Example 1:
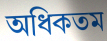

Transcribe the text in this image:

অধিকতম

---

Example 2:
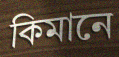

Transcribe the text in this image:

কিমানে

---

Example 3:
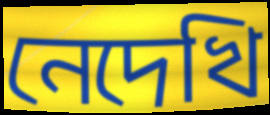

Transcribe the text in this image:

নেদেখি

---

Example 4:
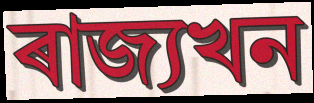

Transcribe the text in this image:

ৰাজ্যখন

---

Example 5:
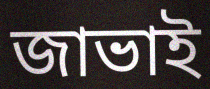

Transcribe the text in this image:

জাভাই